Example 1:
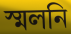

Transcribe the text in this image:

স্মলনি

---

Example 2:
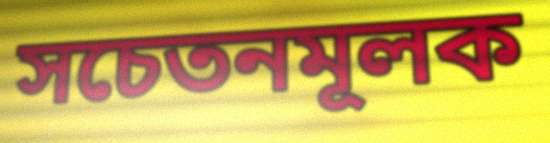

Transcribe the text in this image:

সচেতনমূলক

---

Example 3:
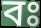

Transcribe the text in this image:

বঃ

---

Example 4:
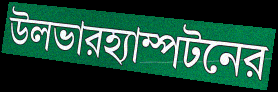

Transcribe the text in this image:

উলভারহ্যাম্পটনের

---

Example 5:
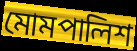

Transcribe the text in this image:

মোমপালিশ